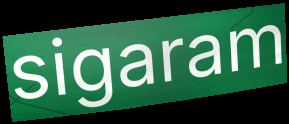
sigaram